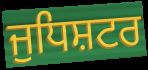
ਜੁਧਿਸ਼ਟਰ